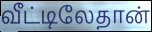
வீட்டிலேதான்